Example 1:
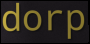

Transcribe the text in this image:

dorp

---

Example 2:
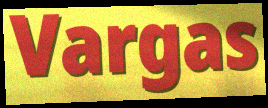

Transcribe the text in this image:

Vargas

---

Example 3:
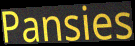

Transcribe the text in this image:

Pansies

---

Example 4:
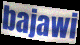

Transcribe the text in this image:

bajawi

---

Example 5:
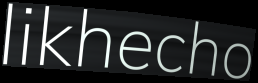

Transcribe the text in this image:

likhecho